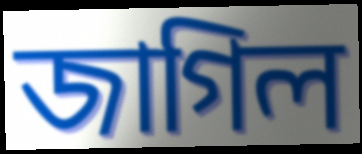
জাগিল